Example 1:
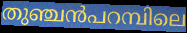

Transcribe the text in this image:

തുഞ്ചൻപറമ്പിലെ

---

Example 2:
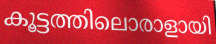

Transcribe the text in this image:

കൂട്ടത്തിലൊരാളായി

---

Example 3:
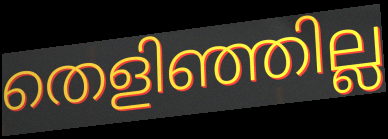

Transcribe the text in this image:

തെളിഞ്ഞില്ല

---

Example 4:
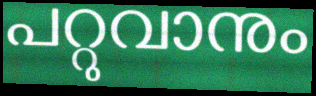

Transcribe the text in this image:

പറ്റുവാനും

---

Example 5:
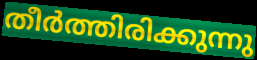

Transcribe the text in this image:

തീർത്തിരിക്കുന്നു